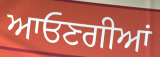
ਆਓਣਗੀਆਂ